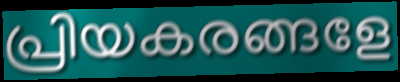
പ്രിയകരങ്ങളേ